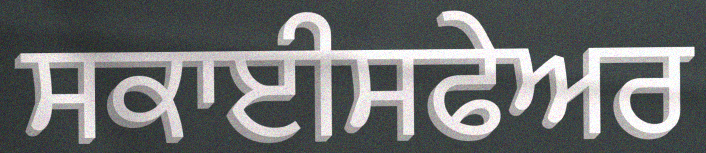
ਸਕਾਈਸਫੇਅਰ